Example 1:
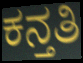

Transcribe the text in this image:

ಕನ್ತತಿ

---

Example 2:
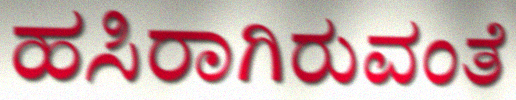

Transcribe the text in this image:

ಹಸಿರಾಗಿರುವಂತೆ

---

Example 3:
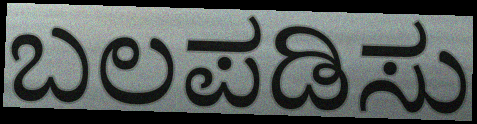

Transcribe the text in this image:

ಬಲಪಡಿಸು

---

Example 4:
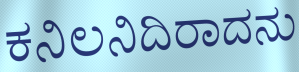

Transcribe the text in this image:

ಕನಿಲನಿದಿರಾದನು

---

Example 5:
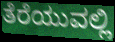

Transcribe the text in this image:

ತೆರೆಯುವಲ್ಲಿ